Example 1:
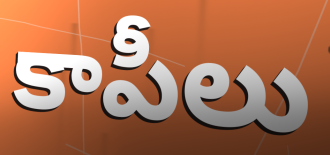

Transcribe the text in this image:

కాపీలు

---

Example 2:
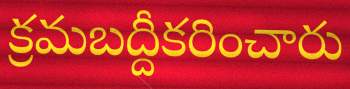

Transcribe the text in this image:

క్రమబద్దీకరించారు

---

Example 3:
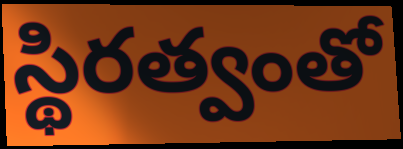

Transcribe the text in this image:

స్థిరత్వంతో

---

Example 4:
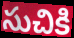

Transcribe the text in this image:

సుచికి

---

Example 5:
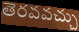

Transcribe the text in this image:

తెరవవచ్చు